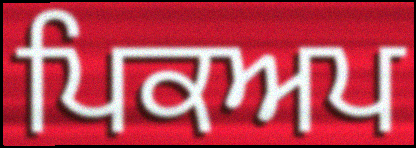
ਪਿਕਅਪ